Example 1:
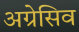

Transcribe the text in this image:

अग्रेसिव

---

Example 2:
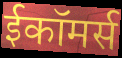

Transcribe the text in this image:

ईकॉमर्स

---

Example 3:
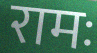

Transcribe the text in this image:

रामः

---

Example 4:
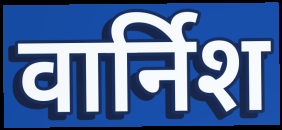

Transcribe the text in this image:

वार्निश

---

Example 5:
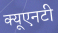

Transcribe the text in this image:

क्यूएनटी